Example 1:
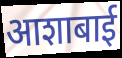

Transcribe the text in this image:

आशाबाई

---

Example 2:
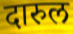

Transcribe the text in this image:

दारुल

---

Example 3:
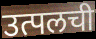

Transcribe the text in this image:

उत्पलची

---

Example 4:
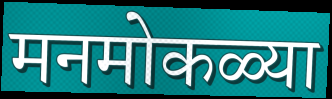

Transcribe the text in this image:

मनमोकळ्या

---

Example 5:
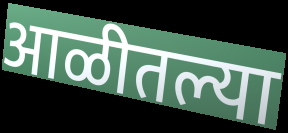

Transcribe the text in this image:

आळीतल्या